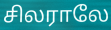
சிலராலே